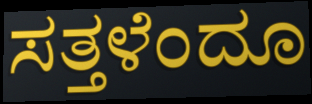
ಸತ್ತಳೆಂದೂ